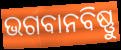
ଭଗବାନବିଷ୍ଣୁ